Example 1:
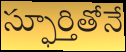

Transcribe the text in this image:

స్ఫూర్తితోనే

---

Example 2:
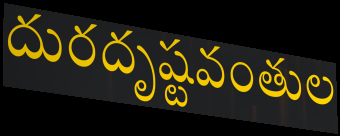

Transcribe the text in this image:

దురదృష్టవంతుల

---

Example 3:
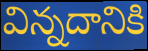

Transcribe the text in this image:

విన్నదానికి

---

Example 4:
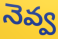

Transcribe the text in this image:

నెవ్వ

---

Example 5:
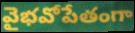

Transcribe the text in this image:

వైభవోపేతంగా